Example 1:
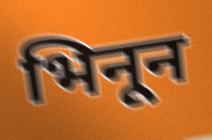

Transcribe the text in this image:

भिनून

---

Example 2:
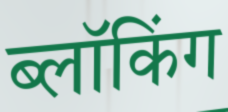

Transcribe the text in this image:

ब्लॉकिंग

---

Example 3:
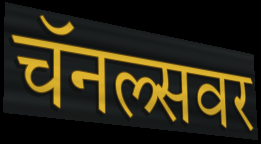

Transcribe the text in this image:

चॅनल्सवर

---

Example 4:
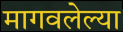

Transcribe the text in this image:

मागवलेल्या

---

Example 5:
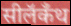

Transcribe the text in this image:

सीलॅकँथ